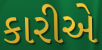
કારીએ